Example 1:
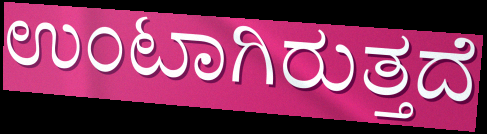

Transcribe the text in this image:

ಉಂಟಾಗಿರುತ್ತದೆ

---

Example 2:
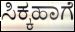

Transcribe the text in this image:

ಸಿಕ್ಕಹಾಗೆ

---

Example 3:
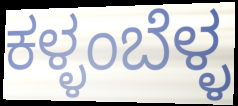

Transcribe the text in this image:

ಕಳ್ಳಂಬೆಳ್ಳ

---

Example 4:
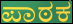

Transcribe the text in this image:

ಪಾಠಕ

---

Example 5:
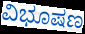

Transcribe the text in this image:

ವಿಭೂಷಣ